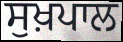
ਸੁਖ਼ਪਾਲ